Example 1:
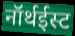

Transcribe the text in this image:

नॉर्थईस्ट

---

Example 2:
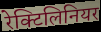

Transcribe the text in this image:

रेक्टिलिनियर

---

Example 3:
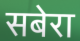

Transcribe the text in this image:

सबेरा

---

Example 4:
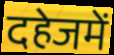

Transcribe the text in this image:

दहेजमें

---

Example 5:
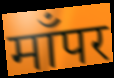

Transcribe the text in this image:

माँपर